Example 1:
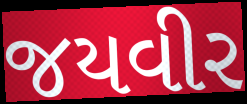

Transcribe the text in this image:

જયવીર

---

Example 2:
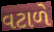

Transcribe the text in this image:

વટાળે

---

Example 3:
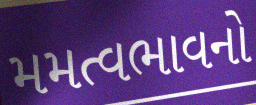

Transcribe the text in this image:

મમત્વભાવનો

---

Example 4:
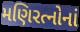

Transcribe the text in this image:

મણિરત્નોનાં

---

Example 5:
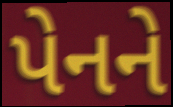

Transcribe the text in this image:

પેનને